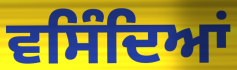
ਵਸਿੰਦਿਆਂ